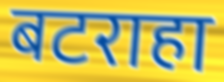
बटराहा